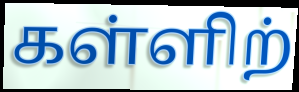
கள்ளிற்